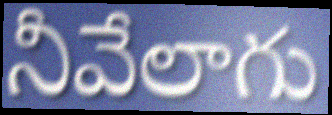
నీవేలాగు